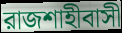
রাজশাহীবাসী